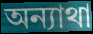
অন্যাথা